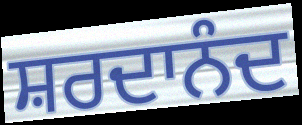
ਸ਼ਰਦਾਨੰਦ